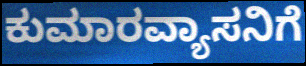
ಕುಮಾರವ್ಯಾಸನಿಗೆ